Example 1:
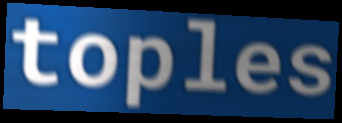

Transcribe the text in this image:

toples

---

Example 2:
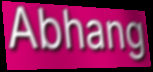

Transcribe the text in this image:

Abhang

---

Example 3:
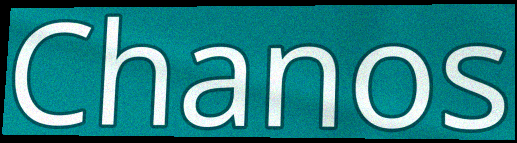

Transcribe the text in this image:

Chanos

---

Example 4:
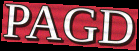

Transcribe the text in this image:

PAGD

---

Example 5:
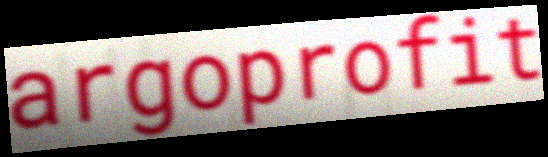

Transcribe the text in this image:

argoprofit